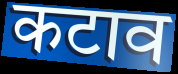
कटाव